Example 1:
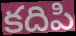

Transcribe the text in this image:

కదిపి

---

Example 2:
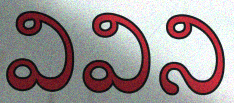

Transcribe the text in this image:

వివిని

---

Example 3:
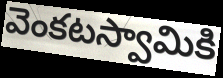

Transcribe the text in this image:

వెంకటస్వామికి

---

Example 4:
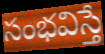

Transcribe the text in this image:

సంభవిస్తే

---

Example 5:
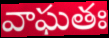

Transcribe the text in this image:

వాఘతః